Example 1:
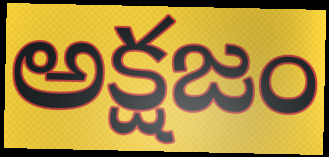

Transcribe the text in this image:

అక్షజం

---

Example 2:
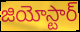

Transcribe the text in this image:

జియోస్టార్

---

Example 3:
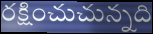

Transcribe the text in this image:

రక్షించుచున్నది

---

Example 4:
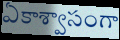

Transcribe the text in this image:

ఏకాశ్వాసంగా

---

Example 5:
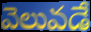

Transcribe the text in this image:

వెలువడే